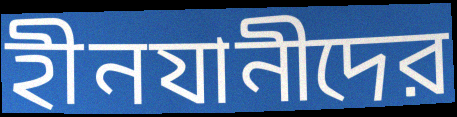
হীনযানীদের